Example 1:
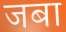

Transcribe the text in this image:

जबा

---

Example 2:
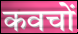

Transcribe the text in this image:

कवचों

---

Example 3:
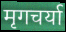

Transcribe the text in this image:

मृगचर्या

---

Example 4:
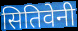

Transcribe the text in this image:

सितिवेनी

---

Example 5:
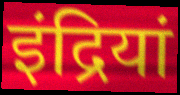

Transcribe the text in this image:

इंद्रियां